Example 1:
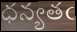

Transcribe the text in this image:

ధన్యతఁ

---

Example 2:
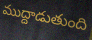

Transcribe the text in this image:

ముద్దాడుతుంది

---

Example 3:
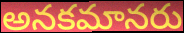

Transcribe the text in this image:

అనకమానరు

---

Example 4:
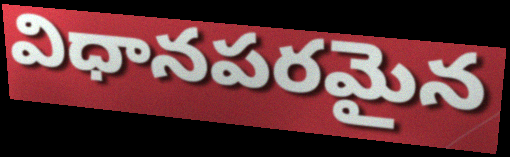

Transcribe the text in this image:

విధానపరమైన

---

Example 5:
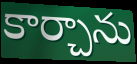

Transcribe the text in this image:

కార్చాను